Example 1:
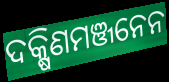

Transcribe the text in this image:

ଦକ୍ଷିଣମଞ୍ଜନେନ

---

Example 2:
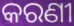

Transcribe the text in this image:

କରଣୀ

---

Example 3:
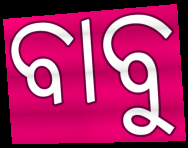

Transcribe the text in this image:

ବାବୁ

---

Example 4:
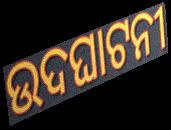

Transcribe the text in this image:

ଉଦଘାଟନୀ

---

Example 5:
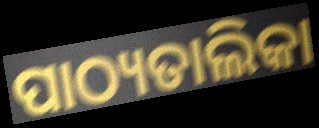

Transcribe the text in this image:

ପାଠ୍ୟତାଲିକା